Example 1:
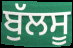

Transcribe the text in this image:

ਬੁੱਲਸੂ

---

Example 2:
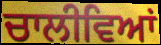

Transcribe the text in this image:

ਚਾਲੀਵਿਆਂ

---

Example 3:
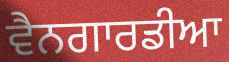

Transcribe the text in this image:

ਵੈਨਗਾਰਡੀਆ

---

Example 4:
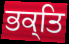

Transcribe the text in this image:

ਭਕ੍ਤਿ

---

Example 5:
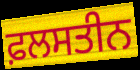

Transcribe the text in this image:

ਫ਼ਲਸਤੀਨ